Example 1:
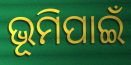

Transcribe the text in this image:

ଭୂମିପାଇଁ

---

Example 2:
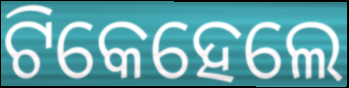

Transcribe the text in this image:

ଟିକେହେଲେ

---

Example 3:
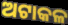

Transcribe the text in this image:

ଅଟାକଳ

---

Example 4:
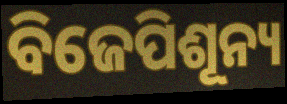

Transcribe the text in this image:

ବିଜେପିଶୂନ୍ୟ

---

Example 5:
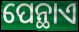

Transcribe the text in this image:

ପେନ୍ଥାଏ